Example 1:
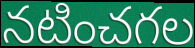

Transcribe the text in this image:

నటించగల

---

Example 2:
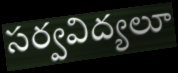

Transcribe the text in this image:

సర్వవిద్యలూ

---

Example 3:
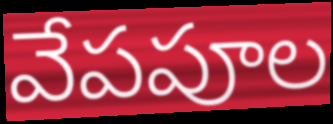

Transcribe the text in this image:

వేపపూల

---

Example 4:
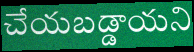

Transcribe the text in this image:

చేయబడ్డాయని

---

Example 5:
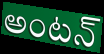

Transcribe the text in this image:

అంటన్